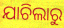
ଯାଚିଲାରୁ